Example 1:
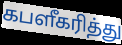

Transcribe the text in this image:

கபளீகரித்து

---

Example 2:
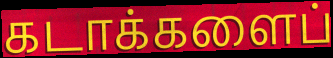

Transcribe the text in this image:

கடாக்களைப்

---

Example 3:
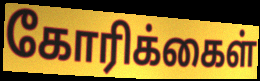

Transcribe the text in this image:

கோரிக்கைள்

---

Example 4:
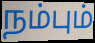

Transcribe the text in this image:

நம்பும்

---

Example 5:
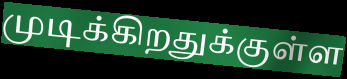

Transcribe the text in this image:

முடிக்கிறதுக்குள்ள